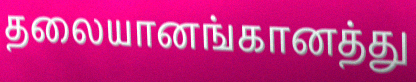
தலையானங்கானத்து